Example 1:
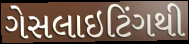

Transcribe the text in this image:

ગેસલાઇટિંગથી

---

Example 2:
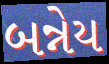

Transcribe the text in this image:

બન્નેય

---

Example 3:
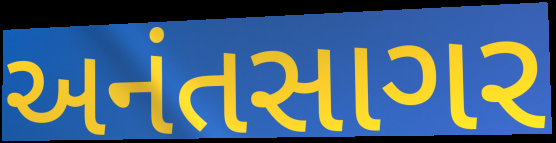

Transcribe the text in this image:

અનંતસાગર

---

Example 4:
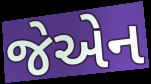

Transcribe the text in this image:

જેએન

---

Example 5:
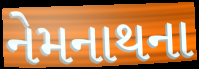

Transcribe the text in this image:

નેમનાથના